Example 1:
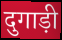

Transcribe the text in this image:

दुगाड़ी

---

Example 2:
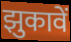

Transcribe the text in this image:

झुकावें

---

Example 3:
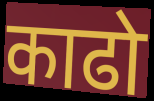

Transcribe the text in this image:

काढो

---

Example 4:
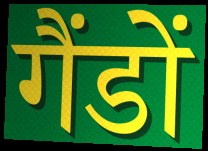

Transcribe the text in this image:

गैंडों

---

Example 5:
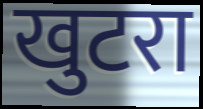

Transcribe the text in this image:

खुटरा